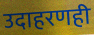
उदाहरणही